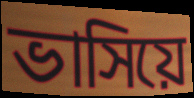
ভাসিয়ে